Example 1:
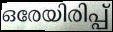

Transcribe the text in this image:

ഒരേയിരിപ്പ്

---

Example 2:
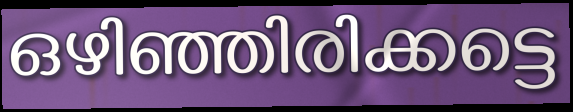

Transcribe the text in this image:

ഒഴിഞ്ഞിരിക്കട്ടെ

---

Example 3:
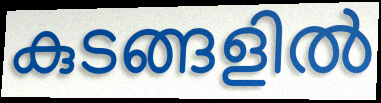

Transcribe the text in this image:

കുടങ്ങളിൽ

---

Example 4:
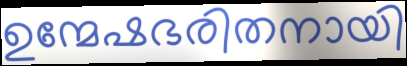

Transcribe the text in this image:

ഉന്മേഷഭരിതനായി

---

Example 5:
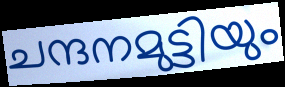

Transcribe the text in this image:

ചന്ദനമുട്ടിയും